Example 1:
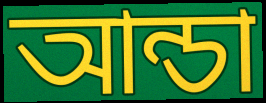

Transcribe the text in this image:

আন্ডা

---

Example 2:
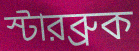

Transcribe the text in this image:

স্টারব্রুক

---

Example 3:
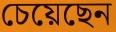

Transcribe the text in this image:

চেয়েছেন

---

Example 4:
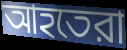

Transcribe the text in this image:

আহতেরা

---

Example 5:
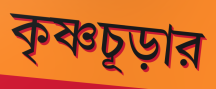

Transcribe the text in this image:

কৃষ্ণচূড়ার